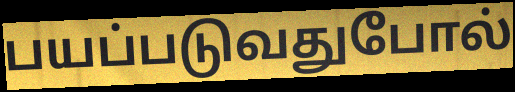
பயப்படுவதுபோல்